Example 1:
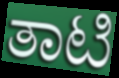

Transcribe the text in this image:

ತಾಟಿ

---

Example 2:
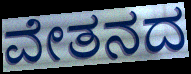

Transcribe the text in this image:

ವೇತನದ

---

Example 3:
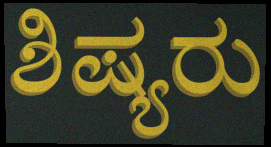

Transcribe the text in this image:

ಶಿಷ್ಯರು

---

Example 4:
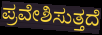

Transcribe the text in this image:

ಪ್ರವೇಶಿಸುತ್ತದೆ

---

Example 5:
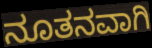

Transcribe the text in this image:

ನೂತನವಾಗಿ